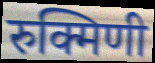
रुक्मिणी